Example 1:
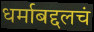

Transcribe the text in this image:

धर्माबद्दलचं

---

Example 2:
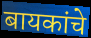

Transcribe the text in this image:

बायकांचे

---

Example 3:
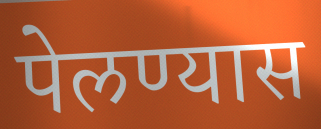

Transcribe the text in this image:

पेलण्यास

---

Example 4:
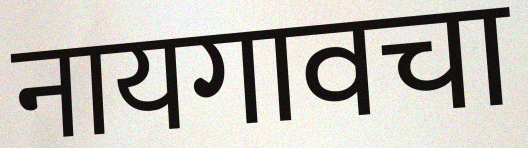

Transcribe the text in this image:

नायगावचा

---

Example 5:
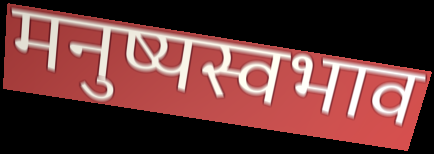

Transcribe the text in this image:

मनुष्यस्वभाव